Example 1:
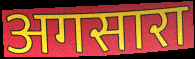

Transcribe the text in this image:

अगसारा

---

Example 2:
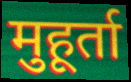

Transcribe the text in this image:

मुहूर्ता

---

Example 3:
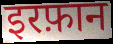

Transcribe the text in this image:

इरफ़ान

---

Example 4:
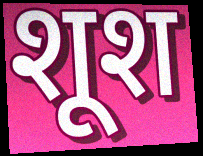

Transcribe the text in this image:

शूश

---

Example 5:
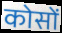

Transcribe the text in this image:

कोसों